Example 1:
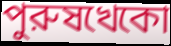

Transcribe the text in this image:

পুরুষখেকো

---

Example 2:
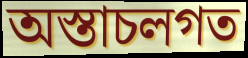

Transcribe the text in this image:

অস্তাচলগত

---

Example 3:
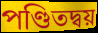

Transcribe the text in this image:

পণ্ডিতদ্বয়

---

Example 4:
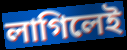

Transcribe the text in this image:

লাগিলেই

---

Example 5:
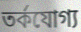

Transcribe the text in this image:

তর্কযোগ্য